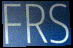
FRS